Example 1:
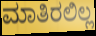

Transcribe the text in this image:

ಮಾತಿರಲಿಲ್ಲ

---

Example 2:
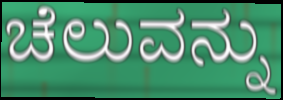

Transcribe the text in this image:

ಚೆಲುವನ್ನು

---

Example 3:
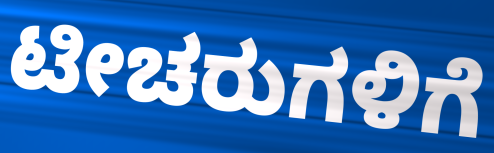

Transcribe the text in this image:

ಟೀಚರುಗಳಿಗೆ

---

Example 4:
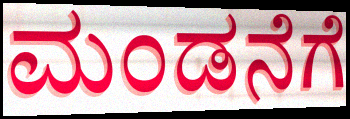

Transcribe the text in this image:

ಮಂಡನೆಗೆ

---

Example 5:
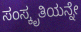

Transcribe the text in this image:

ಸಂಸ್ಕೃತಿಯನ್ನೇ